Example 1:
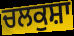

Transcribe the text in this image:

ਚਲਕੁਸ਼ਾ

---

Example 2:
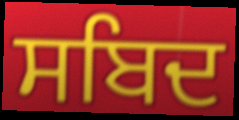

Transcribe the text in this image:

ਸਬਿਦ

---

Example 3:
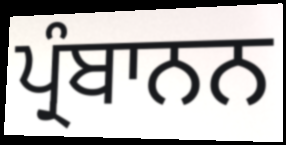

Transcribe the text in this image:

ਪ੍ਰੰਬਾਨਨ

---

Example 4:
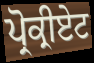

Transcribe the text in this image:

ਪ੍ਰੋਕ੍ਰੀਏਟ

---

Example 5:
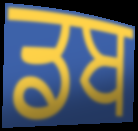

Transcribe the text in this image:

ਡਬ